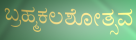
ಬ್ರಹ್ಮಕಲಶೋತ್ಸವ